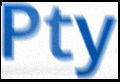
Pty